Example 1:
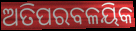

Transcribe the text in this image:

ଅତିପରବଳୟିକ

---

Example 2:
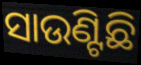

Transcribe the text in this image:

ସାଉଣ୍ଟିଛି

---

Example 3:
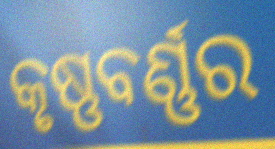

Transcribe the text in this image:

କୃଷ୍ଣବର୍ଣ୍ଣର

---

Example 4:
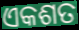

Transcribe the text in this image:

ଏକଶତ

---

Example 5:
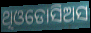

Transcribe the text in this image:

ଥିଓଡୋସିଅସ